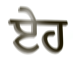
ਏਹ